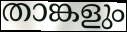
താങ്കളും